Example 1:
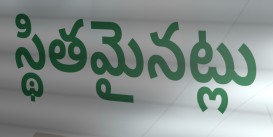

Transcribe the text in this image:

స్థితమైనట్లు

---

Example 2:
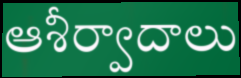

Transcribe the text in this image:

ఆశీర్వాదాలు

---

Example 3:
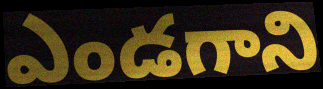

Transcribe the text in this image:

ఎండగాని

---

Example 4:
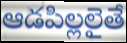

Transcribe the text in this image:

ఆడపిల్లలైతే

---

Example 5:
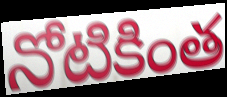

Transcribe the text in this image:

నోటికింత